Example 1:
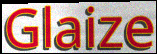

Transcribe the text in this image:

Glaize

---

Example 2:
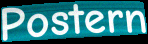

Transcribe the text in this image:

Postern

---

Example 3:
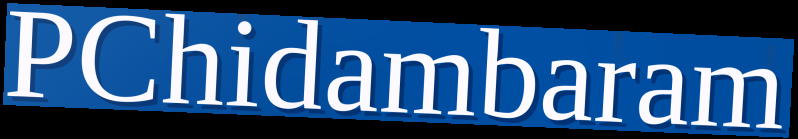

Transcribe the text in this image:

PChidambaram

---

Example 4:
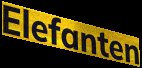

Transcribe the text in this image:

Elefanten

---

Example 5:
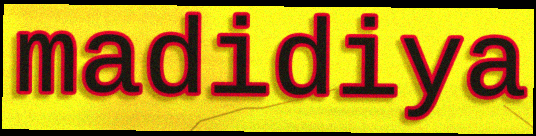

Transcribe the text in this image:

madidiya